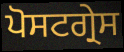
ਪੋਸਟਗ੍ਰੇਸ